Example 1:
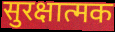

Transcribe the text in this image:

सुरक्षात्मक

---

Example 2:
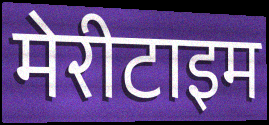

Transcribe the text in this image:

मेरीटाइम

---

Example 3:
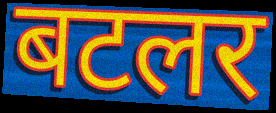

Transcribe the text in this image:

बटलर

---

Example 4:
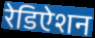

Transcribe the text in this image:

रेडिऐशन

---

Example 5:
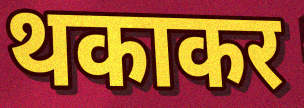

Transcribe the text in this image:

थकाकर